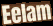
Eelam